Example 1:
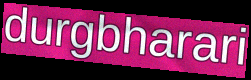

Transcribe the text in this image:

durgbharari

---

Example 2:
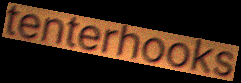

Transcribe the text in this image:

tenterhooks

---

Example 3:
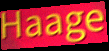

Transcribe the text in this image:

Haage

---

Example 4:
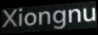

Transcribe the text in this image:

Xiongnu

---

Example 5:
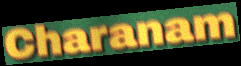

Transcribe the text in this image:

Charanam